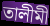
তালীমী